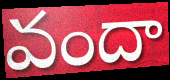
వందా